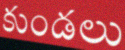
కుండలు